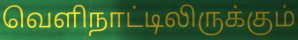
வெளிநாட்டிலிருக்கும்